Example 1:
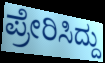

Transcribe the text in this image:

ಪ್ರೇರಿಸಿದ್ದು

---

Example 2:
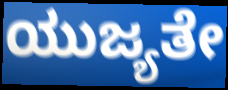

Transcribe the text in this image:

ಯುಜ್ಯತೇ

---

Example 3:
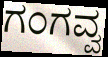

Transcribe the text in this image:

ಗಂಗವ್ವ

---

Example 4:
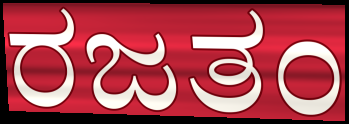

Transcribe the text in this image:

ರಜತಂ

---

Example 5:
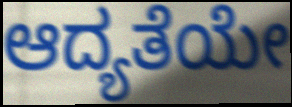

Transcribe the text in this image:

ಆದ್ಯತೆಯೇ